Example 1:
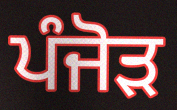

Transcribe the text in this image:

ਪੰਜੋੜ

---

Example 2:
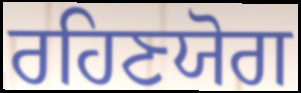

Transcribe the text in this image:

ਰਹਿਣਯੋਗ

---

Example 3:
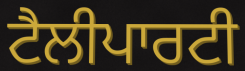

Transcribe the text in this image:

ਟੈਲੀਪਾਰਟੀ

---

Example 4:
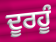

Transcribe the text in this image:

ਦੂਰਹੂੰ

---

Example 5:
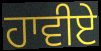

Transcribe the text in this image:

ਹਾਵੀਏ